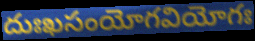
దుఃఖసంయోగవియోగః